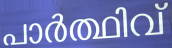
പാർത്ഥിവ്